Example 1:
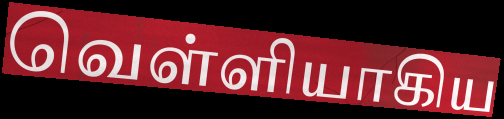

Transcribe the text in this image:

வெள்ளியாகிய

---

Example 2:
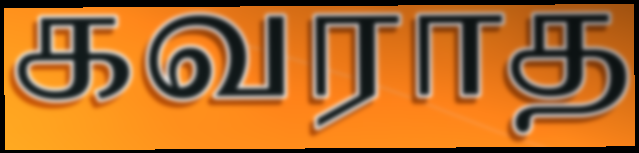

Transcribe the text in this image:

கவராத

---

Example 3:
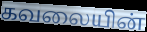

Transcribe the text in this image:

கவலையின்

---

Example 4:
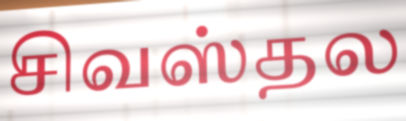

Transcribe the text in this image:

சிவஸ்தல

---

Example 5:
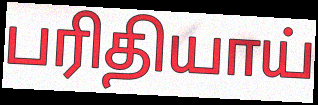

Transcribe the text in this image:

பரிதியாய்